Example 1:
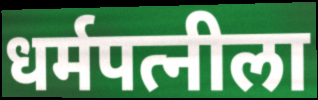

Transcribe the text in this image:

धर्मपत्नीला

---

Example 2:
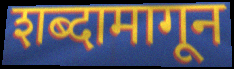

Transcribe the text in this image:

शब्दामागून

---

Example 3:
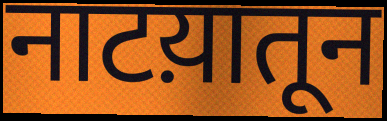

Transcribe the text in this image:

नाटय़ातून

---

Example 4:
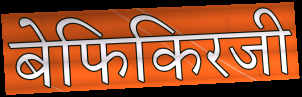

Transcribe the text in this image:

बेफिकिरजी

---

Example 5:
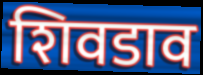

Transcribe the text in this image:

शिवडाव